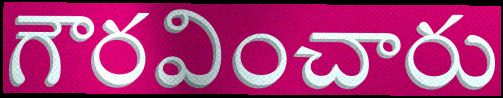
గౌరవించారు